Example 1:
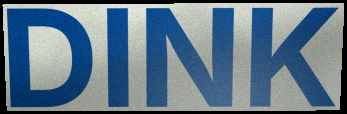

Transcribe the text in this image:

DINK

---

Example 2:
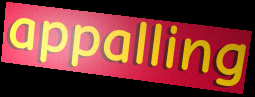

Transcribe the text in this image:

appalling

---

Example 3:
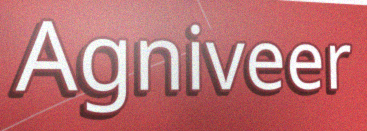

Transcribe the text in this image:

Agniveer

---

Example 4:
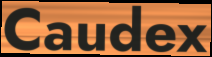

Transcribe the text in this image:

Caudex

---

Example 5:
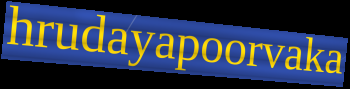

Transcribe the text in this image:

hrudayapoorvaka